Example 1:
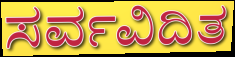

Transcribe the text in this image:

ಸರ್ವವಿದಿತ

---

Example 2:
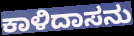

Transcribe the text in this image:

ಕಾಳಿದಾಸನು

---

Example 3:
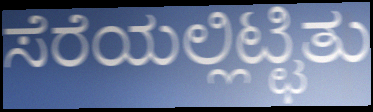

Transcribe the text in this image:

ಸೆರೆಯಲ್ಲಿಟ್ಟಿತು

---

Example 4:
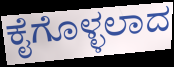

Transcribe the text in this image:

ಕೈಗೊಳ್ಳಲಾದ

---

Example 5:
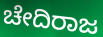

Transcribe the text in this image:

ಚೇದಿರಾಜ